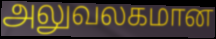
அலுவலகமான